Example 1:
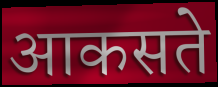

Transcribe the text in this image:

आकसते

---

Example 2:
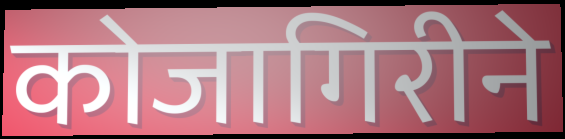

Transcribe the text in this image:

कोजागिरीने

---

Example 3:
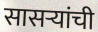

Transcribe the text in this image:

सासऱ्यांची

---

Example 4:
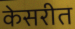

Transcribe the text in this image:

केसरीत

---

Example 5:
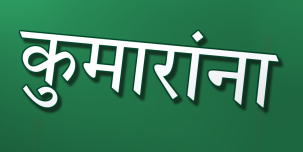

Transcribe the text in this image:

कुमारांना